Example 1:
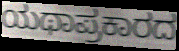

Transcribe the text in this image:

ಯಥಾಪ್ರಕಾರದ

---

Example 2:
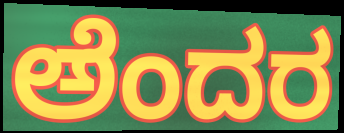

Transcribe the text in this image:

ಅೆಂದರ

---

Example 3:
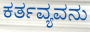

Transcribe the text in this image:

ಕರ್ತವ್ಯವನು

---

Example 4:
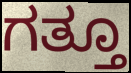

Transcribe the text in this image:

ಗತ್ತೂ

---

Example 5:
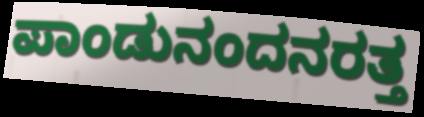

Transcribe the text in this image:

ಪಾಂಡುನಂದನರತ್ತ